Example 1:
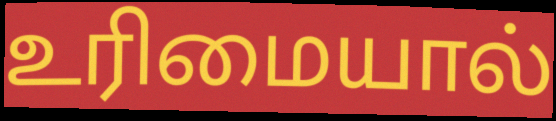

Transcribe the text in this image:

உரிமையால்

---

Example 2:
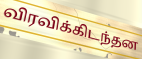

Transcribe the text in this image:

விரவிக்கிடந்தன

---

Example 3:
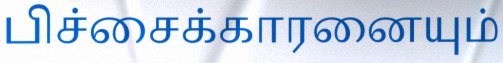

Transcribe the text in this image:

பிச்சைக்காரனையும்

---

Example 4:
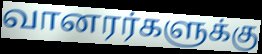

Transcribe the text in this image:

வானரர்களுக்கு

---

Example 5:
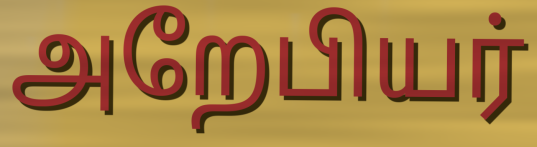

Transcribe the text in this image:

அறேபியர்